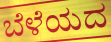
ಬೆಳೆಯದ